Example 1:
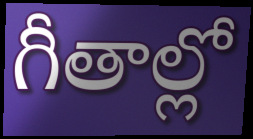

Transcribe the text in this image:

గీతాల్లో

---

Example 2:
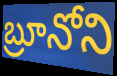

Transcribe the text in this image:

బ్రూనోని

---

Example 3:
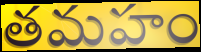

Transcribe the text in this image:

తమహం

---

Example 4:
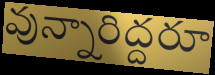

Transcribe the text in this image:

వున్నారిద్దరూ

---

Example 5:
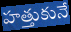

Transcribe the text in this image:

హత్తుకునే